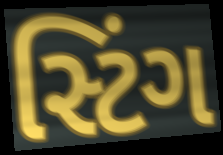
સ્ટિંગ